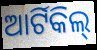
ଆର୍ଟିକିଲ୍